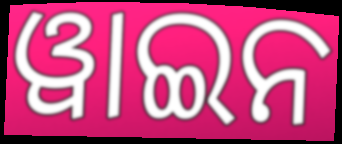
ୱାଇନ